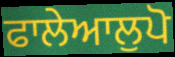
ਫਾਲੇਆਲੁਪੋ